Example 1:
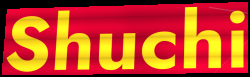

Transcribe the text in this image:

Shuchi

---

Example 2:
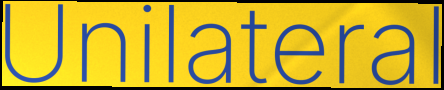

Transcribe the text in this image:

Unilateral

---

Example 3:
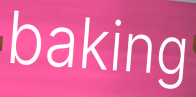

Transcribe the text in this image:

baking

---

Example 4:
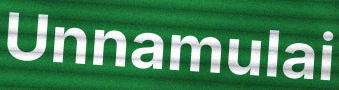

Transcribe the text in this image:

Unnamulai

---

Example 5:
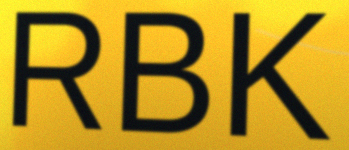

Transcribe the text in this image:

RBK